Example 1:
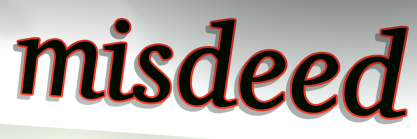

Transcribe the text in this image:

misdeed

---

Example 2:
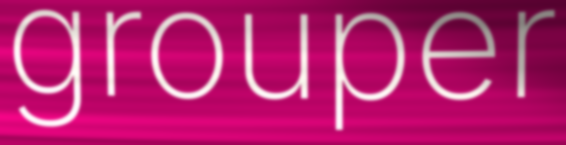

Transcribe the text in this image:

grouper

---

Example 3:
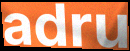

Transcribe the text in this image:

adru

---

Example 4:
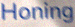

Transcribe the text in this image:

Honing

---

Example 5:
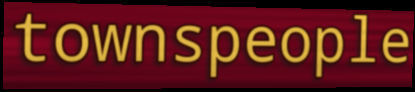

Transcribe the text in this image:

townspeople